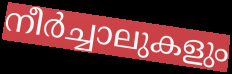
നീർച്ചാലുകളും